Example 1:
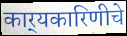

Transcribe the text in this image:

कार्यकारिणीचे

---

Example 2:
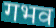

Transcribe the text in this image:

गभव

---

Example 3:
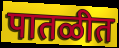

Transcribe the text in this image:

पातळीत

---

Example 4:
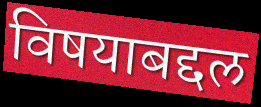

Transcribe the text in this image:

विषयाबद्दल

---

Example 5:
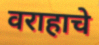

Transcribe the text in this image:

वराहाचे